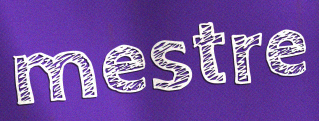
mestre